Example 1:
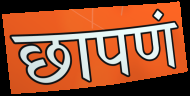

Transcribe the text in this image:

छापणं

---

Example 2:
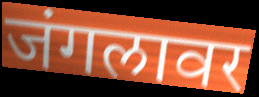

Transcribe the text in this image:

जंगलावर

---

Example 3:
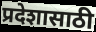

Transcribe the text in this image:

प्रदेशासाठी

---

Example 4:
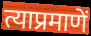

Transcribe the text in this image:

त्याप्रमाणें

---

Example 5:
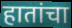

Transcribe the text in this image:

हातांचा